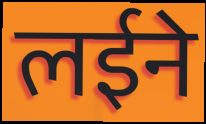
लईने